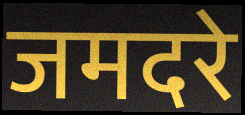
जमदरे